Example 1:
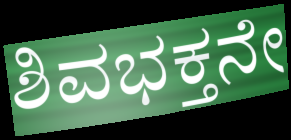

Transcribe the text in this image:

ಶಿವಭಕ್ತನೇ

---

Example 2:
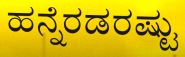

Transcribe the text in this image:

ಹನ್ನೆರಡರಷ್ಟು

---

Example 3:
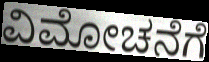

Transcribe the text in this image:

ವಿಮೋಚನೆಗೆ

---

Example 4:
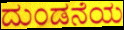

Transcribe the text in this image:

ದುಂಡನೆಯ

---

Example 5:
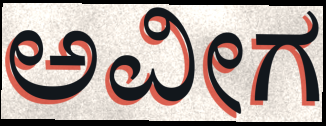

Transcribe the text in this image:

ಅವೀಗ